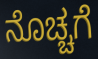
ನೊಚ್ಚಗೆ